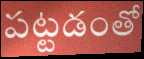
పట్టడంతో